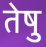
तेषु